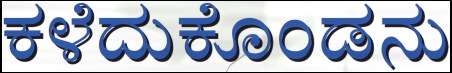
ಕಳೆದುಕೊಂಡನು